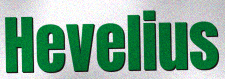
Hevelius